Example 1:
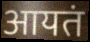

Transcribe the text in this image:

आयतं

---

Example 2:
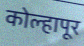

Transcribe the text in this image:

कोल्हापूर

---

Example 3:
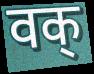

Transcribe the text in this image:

वक्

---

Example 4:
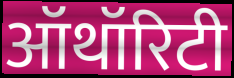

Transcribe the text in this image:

ऑथॉरिटी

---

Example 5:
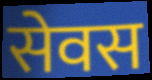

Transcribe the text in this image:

सेवस